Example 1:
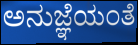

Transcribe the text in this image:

ಅನುಜ್ಞೆಯಂತೆ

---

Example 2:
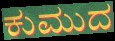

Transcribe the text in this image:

ಕುಮುದ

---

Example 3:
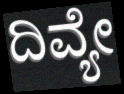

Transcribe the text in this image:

ದಿವ್ಯೇ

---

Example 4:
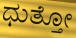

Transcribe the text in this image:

ಧುತ್ತೋ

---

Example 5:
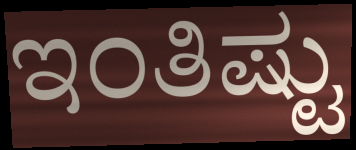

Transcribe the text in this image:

ಇಂತಿಷ್ಟು